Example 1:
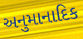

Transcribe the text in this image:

અનુમાનાદિક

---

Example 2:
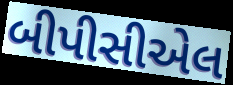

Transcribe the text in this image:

બીપીસીએલ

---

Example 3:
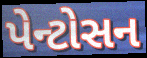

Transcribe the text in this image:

પેન્ટોસન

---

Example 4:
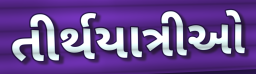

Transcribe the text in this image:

તીર્થયાત્રીઓ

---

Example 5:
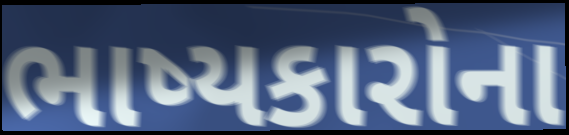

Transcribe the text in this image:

ભાષ્યકારોના